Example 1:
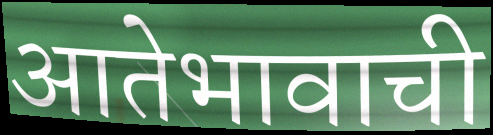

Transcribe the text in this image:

आतेभावाची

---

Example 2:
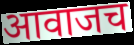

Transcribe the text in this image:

आवाजच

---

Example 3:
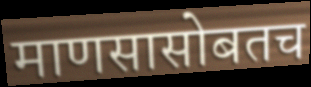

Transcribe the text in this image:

माणसासोबतच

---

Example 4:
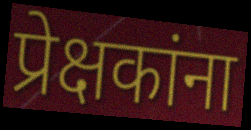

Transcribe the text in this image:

प्रेक्षकांना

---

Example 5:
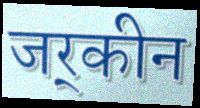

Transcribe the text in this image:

जर्कीन